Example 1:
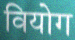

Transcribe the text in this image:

वियोग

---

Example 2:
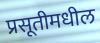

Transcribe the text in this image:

प्रसूतीमधील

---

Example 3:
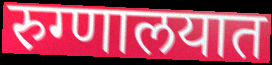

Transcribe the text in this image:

रुग्णालयात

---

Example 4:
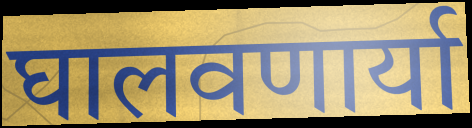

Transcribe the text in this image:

घालवणार्या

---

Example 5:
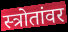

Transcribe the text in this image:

स्त्रोतांवर